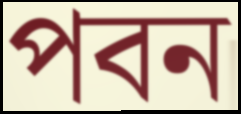
পবন